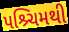
પશ્ર્ચિમથી